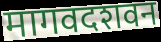
मागवदशवन